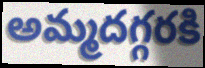
అమ్మదగ్గరకి